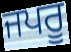
ਜਪਰੂ